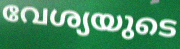
വേശ്യയുടെ